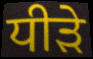
ਧੀੜੇ